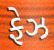
ફેઝ